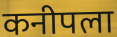
कनीपला